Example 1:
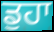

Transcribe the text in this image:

ਡੁਹਾ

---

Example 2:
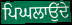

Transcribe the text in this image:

ਪਿਘਲਾਉਂਦੇ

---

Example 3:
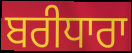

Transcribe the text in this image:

ਬਰੀਧਾਰਾ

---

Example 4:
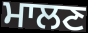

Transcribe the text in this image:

ਮਾਲਣ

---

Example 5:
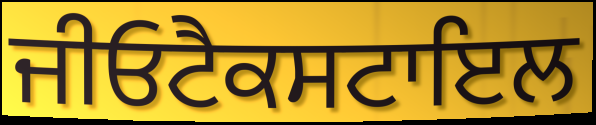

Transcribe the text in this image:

ਜੀਓਟੈਕਸਟਾਇਲ